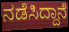
ನಡೆಸಿದ್ದಾನೆ